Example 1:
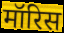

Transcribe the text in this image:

मॉरिस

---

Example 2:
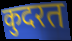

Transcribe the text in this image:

कुदरत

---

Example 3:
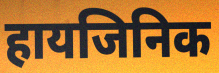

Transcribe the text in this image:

हायजिनिक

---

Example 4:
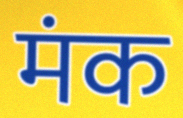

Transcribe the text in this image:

मंक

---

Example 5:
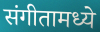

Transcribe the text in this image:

संगीतामध्ये